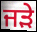
ਜੜੇ